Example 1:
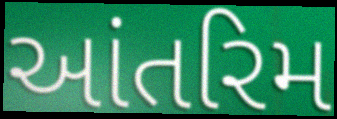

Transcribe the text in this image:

આંતરિમ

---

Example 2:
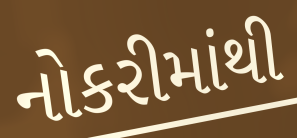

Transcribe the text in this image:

નોકરીમાંથી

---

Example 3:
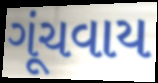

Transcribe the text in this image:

ગૂંચવાય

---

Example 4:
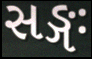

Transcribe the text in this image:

સઙ્ગઃ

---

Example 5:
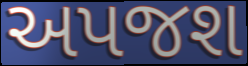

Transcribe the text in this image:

અપજશ